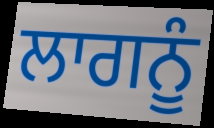
ਲਾਗਨੂੰ